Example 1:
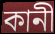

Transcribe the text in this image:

কানী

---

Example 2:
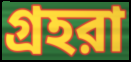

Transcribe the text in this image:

গ্রহরা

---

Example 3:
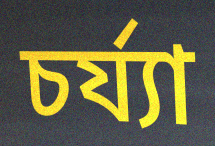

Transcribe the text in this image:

চর্য্যা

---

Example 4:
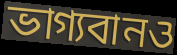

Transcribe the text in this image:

ভাগ্যবানও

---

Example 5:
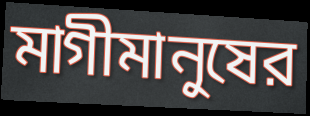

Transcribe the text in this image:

মাগীমানুষের